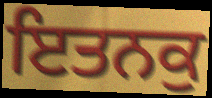
ਇਤਨਕੁ